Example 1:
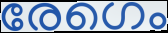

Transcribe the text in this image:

രേഗെം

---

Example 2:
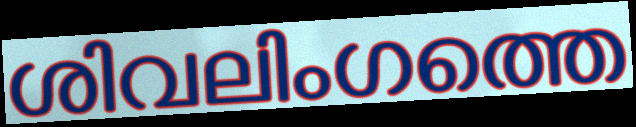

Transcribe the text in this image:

ശിവലിംഗത്തെ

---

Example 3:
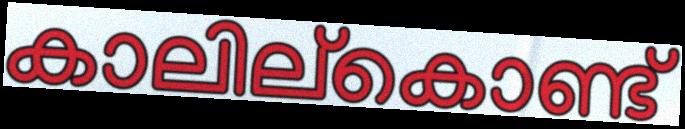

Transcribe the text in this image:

കാലില്കൊണ്ട്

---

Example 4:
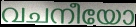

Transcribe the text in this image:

വചനീയോ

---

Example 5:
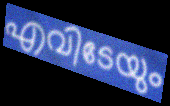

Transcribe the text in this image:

എവിടേയും